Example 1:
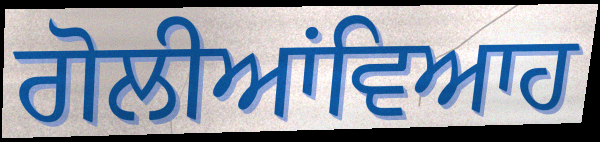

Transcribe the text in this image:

ਗੋਲੀਆਂਵਿਆਹ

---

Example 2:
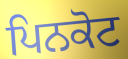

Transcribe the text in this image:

ਪਿਨਕੋਟ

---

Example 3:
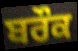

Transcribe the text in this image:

ਬਰੌਕ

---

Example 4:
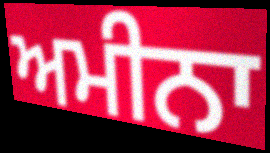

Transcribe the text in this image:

ਅਮੀਨਾ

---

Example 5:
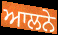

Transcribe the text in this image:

ਆਲਨੇ